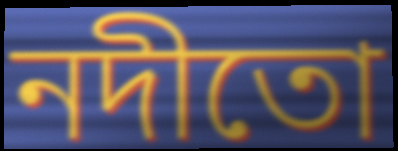
নদীতো